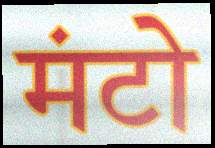
मंटो